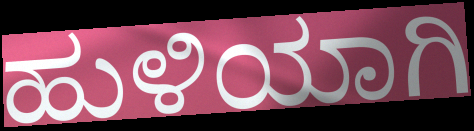
ಹುಳಿಯಾಗಿ